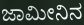
ಜಾಮೀನಿನ